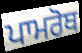
ਪਾਮਰੋਥ